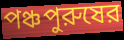
পঞ্চপুরুষের